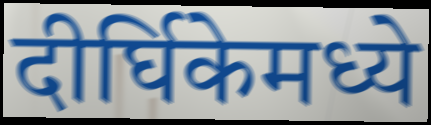
दीर्घिकेमध्ये